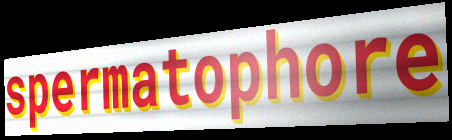
spermatophore